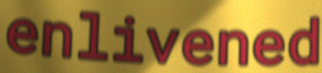
enlivened